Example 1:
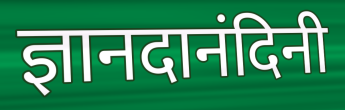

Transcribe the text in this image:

ज्ञानदानंदिनी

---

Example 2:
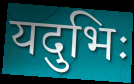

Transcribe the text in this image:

यदुभिः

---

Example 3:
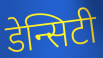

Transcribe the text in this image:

डेन्सिटी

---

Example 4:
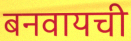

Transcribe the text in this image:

बनवायची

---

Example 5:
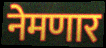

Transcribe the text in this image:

नेमणार